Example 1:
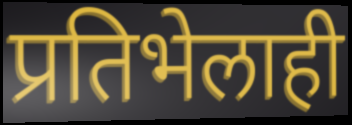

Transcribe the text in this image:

प्रतिभेलाही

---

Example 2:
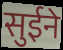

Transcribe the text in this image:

सुईने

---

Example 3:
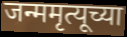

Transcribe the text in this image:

जन्ममृत्यूच्या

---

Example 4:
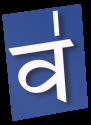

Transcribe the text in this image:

व॑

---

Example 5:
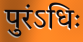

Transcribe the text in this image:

पुरंऽधिः